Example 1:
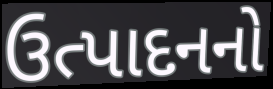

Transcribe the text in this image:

ઉત્પાદનનો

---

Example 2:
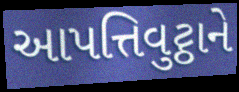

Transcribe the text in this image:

આપત્તિવુટ્ઠાને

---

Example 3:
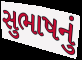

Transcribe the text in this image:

સુભાષનું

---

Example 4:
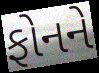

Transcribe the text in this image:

ફોનને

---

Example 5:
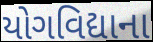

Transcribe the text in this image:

યોગવિદ્યાના